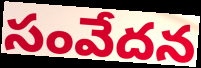
సంవేదన